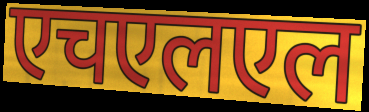
एचएलएल